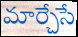
మార్చేసే